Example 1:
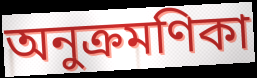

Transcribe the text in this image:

অনুক্রমণিকা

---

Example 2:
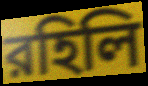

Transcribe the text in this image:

রহিলি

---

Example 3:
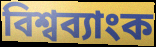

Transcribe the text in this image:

বিশ্বব্যাংক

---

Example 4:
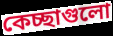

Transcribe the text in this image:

কেচ্ছাগুলো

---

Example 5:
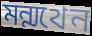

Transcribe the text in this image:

মন্মথেন